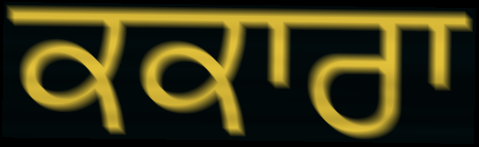
ਕਕਾਰਾ